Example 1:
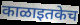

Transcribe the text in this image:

काळाइतकेच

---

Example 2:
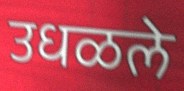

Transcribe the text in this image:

उधळले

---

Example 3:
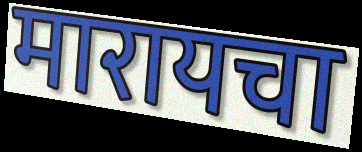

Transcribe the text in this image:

मारायचा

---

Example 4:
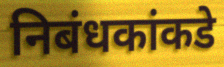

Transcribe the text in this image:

निबंधकांकडे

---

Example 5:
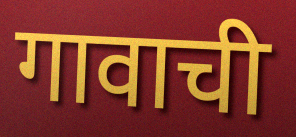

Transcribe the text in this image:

गावाची